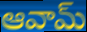
ఆవామ్